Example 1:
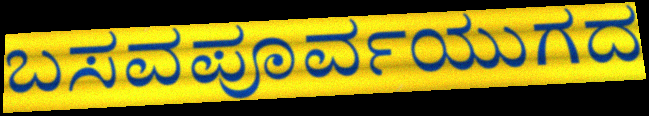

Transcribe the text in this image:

ಬಸವಪೂರ್ವಯುಗದ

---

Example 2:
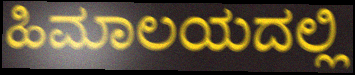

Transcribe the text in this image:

ಹಿಮಾಲಯದಲ್ಲಿ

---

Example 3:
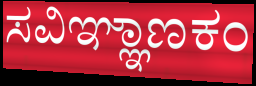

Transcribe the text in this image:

ಸವಿಞ್ಞಾಣಕಂ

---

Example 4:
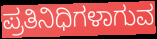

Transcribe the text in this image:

ಪ್ರತಿನಿಧಿಗಳಾಗುವ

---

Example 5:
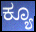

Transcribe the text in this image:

ಕ್ಯೂ